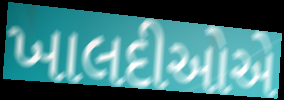
ખાલદીઓએ